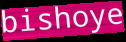
bishoye